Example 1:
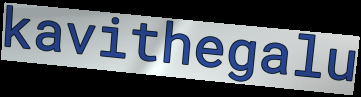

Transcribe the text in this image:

kavithegalu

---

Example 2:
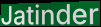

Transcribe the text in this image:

Jatinder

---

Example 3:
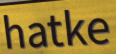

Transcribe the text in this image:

hatke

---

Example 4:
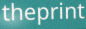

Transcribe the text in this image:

theprint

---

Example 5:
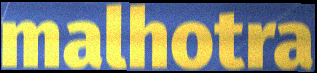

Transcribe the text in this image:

malhotra